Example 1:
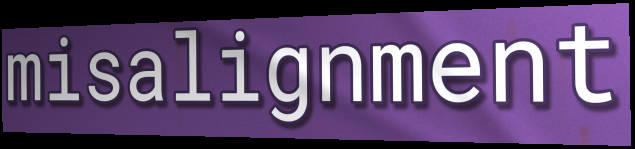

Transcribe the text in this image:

misalignment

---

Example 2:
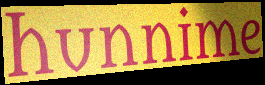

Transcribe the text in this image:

hunnime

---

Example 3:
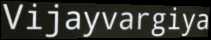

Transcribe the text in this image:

Vijayvargiya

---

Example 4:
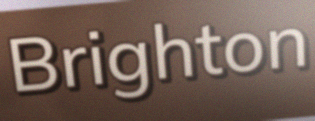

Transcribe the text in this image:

Brighton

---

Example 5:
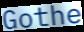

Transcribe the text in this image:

Gothe